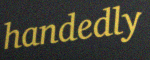
handedly